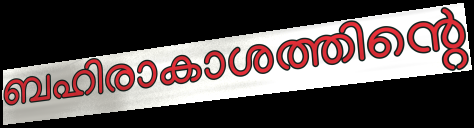
ബഹിരാകാശത്തിന്റെ